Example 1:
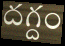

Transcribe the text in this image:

దగ్దం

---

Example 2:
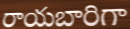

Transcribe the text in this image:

రాయబారిగా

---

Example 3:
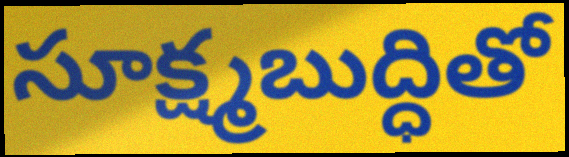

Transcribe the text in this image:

సూక్ష్మబుద్ధితో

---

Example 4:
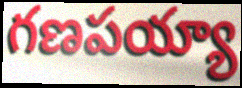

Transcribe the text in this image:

గణపయ్యా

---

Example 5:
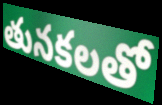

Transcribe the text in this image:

తునకలతో